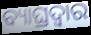
ବ୍ୟାଘ୍ରଦ୍ଵାର